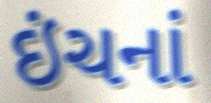
ઇંચનાં